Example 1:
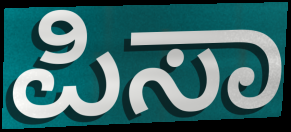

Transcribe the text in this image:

ಪಿಸಾ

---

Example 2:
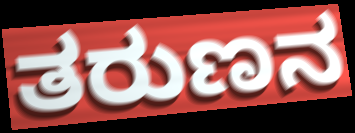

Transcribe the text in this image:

ತರುಣನ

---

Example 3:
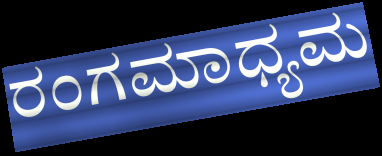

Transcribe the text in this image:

ರಂಗಮಾಧ್ಯಮ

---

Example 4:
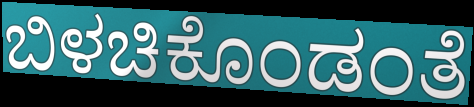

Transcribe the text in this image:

ಬಿಳಚಿಕೊಂಡಂತೆ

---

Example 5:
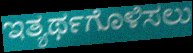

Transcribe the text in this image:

ಇತ್ಯರ್ಥಗೊಳಿಸಲು